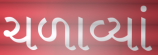
ચળાવ્યાં